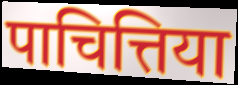
पाचित्तिया